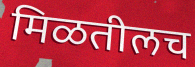
मिळतीलच